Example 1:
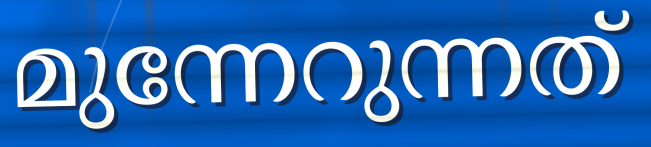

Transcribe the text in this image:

മുന്നേറുന്നത്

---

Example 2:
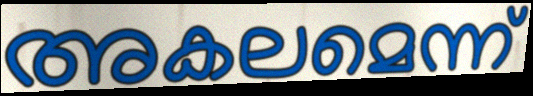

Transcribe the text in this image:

അകലമെന്ന്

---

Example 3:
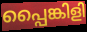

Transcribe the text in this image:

പ്പൈങ്കിളി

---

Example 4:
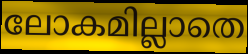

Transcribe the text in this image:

ലോകമില്ലാതെ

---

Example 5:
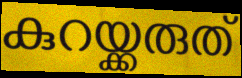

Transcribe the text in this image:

കുറയ്ക്കരുത്